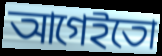
আগেইতো